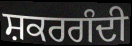
ਸ਼ਕਰਗੰਦੀ